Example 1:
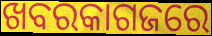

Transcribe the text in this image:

ଖବରକାଗଜରେ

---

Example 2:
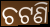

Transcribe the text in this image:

ଚଟଣି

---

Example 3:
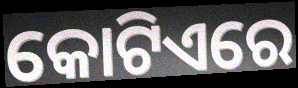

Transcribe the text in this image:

କୋଟିଏରେ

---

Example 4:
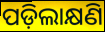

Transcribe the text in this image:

ପଡ଼ିଲାକ୍ଷଣି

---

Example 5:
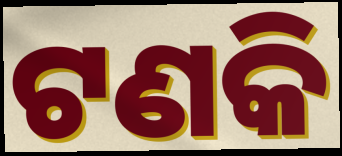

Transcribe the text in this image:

ଟଣକି